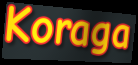
Koraga